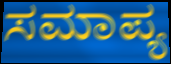
ಸಮಾಪ್ಯ